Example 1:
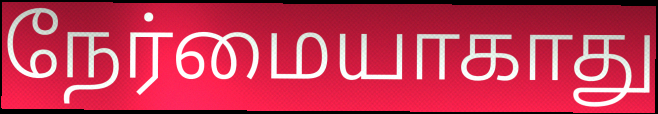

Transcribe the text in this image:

நேர்மையாகாது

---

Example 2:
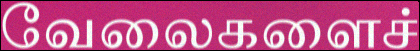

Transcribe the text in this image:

வேலைகளைச்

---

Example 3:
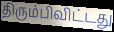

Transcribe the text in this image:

திரும்பிவிட்டது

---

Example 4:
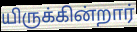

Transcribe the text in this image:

யிருக்கின்றார்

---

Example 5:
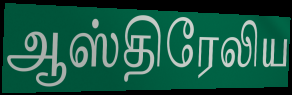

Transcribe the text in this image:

ஆஸ்திரேலிய